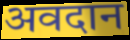
अवदान